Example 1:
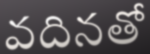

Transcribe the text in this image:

వదినతో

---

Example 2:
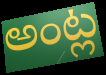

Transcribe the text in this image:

అంట్ల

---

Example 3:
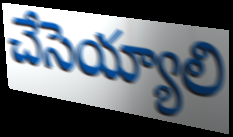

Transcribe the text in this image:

చేసెయ్యాలి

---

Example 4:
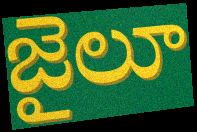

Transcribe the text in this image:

జైలూ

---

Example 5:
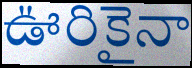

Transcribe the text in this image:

ఊరికైనా